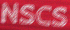
NSCS